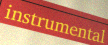
instrumental